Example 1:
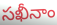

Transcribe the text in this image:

సఖీనాం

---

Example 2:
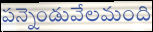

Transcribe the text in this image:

పన్నెండువేలమంది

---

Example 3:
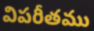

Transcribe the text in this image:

విపరీతము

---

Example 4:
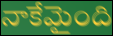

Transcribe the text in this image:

నాకేమైంది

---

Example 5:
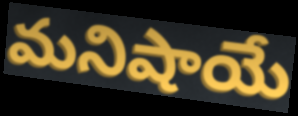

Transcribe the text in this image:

మనిషాయే